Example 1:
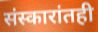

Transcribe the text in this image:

संस्कारांतही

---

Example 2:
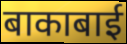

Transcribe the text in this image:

बाकाबाई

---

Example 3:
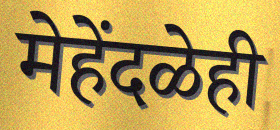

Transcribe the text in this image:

मेहेंदळेही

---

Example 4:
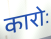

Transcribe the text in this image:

कारोः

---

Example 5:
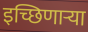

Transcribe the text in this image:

इच्छिणार्‍या